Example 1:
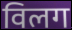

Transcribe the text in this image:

विलग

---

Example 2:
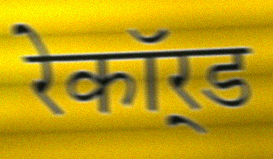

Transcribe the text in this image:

रेकॉर्ड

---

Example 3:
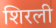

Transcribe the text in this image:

शिरली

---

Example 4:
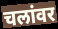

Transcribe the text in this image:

चलांवर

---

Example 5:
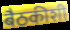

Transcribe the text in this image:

बैठकीशी